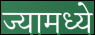
ज्यामध्ये